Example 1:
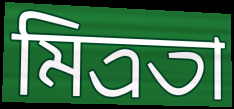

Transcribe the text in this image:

মিত্ৰতা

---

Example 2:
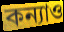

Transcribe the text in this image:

কন্যাও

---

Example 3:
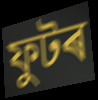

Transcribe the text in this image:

ফুটৰ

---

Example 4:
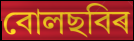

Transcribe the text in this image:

বোলছবিৰ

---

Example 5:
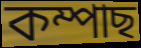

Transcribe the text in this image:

কম্পাছ